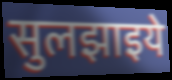
सुलझाइये